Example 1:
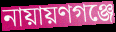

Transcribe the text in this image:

নায়ায়ণগঞ্জে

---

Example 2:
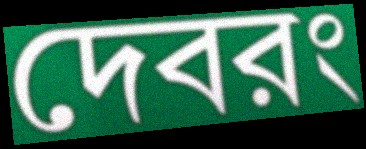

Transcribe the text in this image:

দেবরং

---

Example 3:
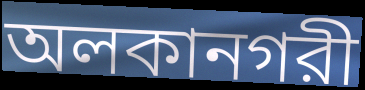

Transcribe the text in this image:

অলকানগরী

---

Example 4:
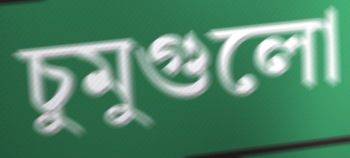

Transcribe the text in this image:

চুমুগুলো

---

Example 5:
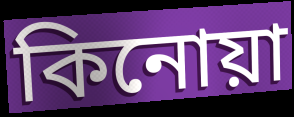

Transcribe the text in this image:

কিনোয়া